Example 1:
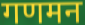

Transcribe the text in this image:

गणमन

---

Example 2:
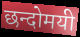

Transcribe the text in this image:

छन्दोमयी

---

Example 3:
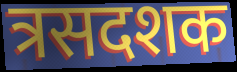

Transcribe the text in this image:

त्रसदशक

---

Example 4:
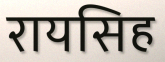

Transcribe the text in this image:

रायसिह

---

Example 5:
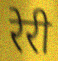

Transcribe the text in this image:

रेरी